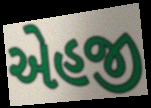
એહજી